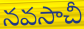
నవసాచీ